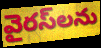
వైరస్‌లను